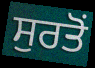
ਸੁਰਤੋਂ